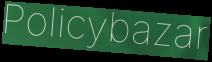
Policybazar